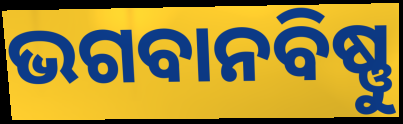
ଭଗବାନବିଷ୍ଣୁ